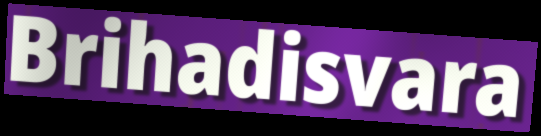
Brihadisvara